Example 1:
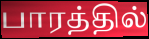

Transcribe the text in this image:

பாரத்தில்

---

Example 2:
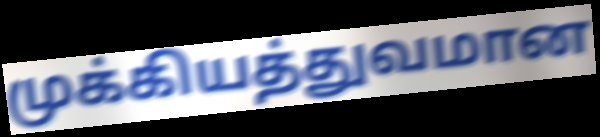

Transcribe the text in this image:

முக்கியத்துவமான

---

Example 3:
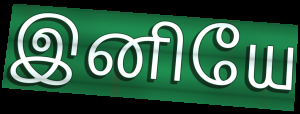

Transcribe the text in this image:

இனியே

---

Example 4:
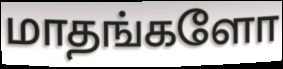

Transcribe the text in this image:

மாதங்களோ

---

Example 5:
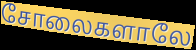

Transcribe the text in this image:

சோலைகளாலே